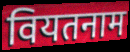
वियतनाम